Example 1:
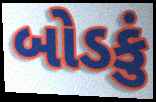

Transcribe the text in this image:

બોડકું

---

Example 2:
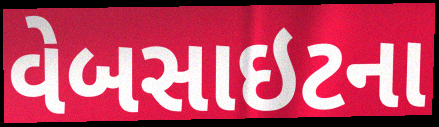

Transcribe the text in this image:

વેબસાઇટના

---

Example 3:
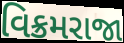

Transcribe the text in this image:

વિક્રમરાજા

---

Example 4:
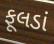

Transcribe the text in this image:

ફૂલડાં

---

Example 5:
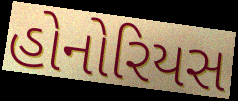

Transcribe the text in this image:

હોનોરિયસ